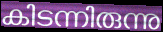
കിടന്നിരുന്നു